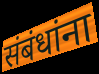
संबंधांना